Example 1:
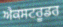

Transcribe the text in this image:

ਐਕਸਟਰੂਡਰ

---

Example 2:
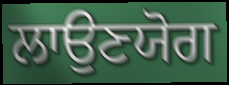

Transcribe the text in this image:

ਲਾਉਣਯੋਗ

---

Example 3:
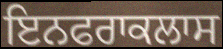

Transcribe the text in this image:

ਇਨਫਰਾਕਲਾਸ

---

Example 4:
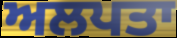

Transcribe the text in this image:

ਅਲਪਤਾ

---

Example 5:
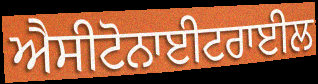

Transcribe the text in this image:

ਐਸੀਟੋਨਾਈਟਰਾਈਲ